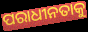
ପରାଧୀନତାକୁ